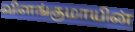
விளங்குமாயின்